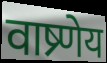
वाष्र्णेय